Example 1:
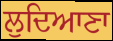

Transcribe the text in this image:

ਲੁਦਿਆਣਾ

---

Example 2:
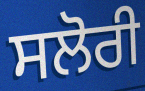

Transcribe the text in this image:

ਸਲੋਰੀ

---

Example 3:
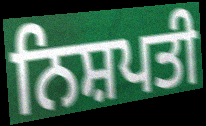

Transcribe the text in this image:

ਨਿਸ਼ਪਤੀ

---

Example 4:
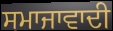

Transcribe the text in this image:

ਸਮਾਜਾਵਾਦੀ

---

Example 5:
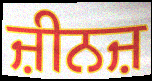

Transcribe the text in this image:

ਜ਼ੀਨਜ਼